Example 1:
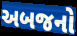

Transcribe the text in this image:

અબજનો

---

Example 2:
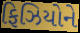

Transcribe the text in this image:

ફિઝિયોને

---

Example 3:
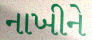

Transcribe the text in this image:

નાખીને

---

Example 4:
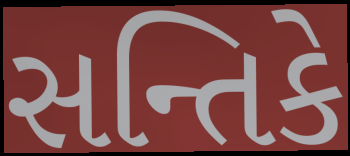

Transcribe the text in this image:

સન્તિકે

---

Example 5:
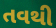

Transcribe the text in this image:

તવથી